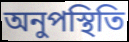
অনুপস্থিতি